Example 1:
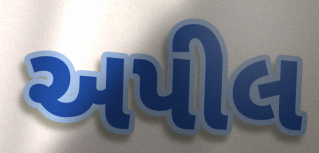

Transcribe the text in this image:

અપીલ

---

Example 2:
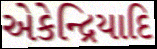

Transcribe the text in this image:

એકેન્દ્રિયાદિ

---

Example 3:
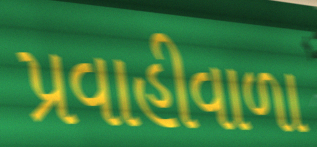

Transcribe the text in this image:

પ્રવાહીવાળા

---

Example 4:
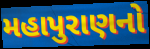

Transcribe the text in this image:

મહાપુરાણનો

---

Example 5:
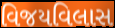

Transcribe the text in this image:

વિજયવિલાસ